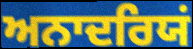
ਅਨਾਦਰਿਯਂ